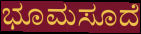
ಭೂಮಸೂದೆ